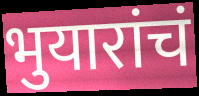
भुयारांचं